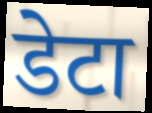
डेटा